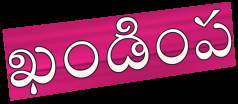
ఖండింప